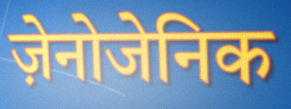
ज़ेनोजेनिक